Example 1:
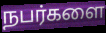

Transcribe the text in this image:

நபர்களை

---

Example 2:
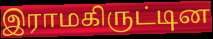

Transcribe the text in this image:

இராமகிருட்டின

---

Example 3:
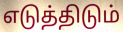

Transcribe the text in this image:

எடுத்திடும்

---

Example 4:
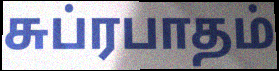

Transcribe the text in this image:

சுப்ரபாதம்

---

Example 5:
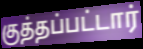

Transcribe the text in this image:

குத்தப்பட்டார்